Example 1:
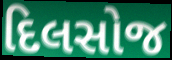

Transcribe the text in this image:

દિલસોજ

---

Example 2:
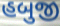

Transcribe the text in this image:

હબુજી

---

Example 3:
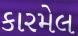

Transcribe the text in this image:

કારમેલ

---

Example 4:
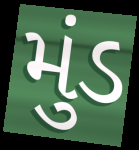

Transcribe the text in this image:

મુંડ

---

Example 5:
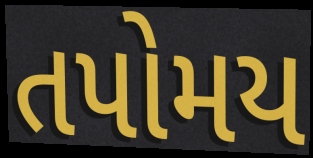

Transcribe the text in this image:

તપોમય